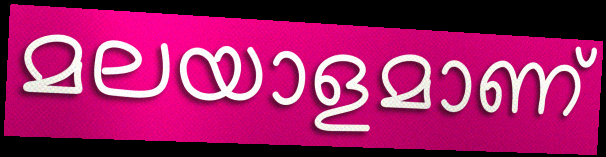
മലയാളമാണ്